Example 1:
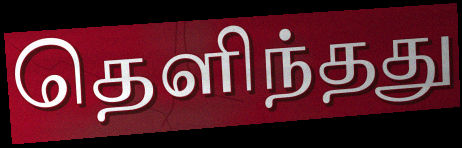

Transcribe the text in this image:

தெளிந்தது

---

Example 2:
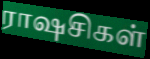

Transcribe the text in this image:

ராஷசிகள்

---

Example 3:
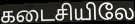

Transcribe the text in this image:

கடைசியிலே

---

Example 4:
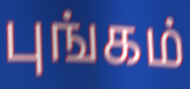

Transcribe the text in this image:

புங்கம்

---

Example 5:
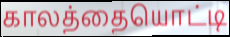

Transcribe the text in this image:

காலத்தையொட்டி